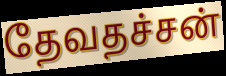
தேவதச்சன்